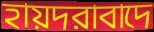
হায়দরাবাদে